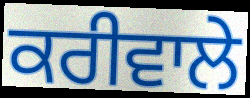
ਕਰੀਵਾਲੇ